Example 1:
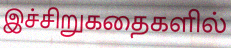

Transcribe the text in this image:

இச்சிறுகதைகளில்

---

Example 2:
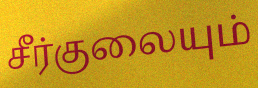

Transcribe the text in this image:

சீர்குலையும்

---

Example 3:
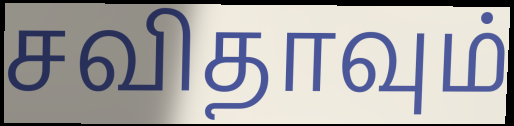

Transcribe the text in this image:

சவிதாவும்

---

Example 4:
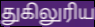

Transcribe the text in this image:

துகிலுரிய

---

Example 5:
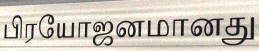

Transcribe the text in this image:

பிரயோஜனமானது